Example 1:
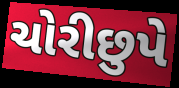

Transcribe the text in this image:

ચોરીછુપે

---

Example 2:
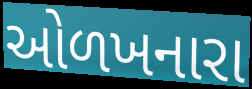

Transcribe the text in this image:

ઓળખનારા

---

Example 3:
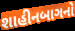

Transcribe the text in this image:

શાહીનબાગનો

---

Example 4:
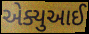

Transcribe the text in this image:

એક્યુઆઈ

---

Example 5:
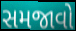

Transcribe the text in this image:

સમજાવો